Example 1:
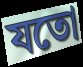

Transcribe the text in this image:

যতো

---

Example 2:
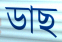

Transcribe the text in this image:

ডাছ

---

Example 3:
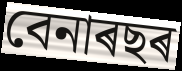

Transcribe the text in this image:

বেনাৰছৰ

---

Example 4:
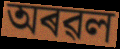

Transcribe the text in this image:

অৰৱল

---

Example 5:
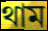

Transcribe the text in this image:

থাম